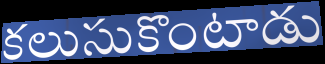
కలుసుకొంటాడు